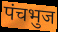
पंचभुज